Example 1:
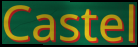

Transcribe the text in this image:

Castel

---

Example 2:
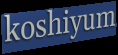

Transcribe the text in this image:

koshiyum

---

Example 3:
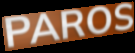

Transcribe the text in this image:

PAROS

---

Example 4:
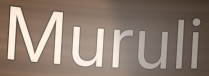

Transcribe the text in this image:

Muruli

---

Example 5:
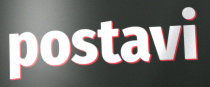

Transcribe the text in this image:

postavi